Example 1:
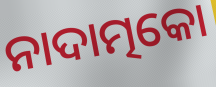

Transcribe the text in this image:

ନାଦାତ୍ମକୋ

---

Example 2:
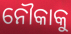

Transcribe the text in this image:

ନୌକାକୁ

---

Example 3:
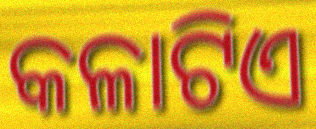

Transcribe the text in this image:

କଳାଟିଏ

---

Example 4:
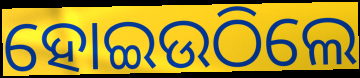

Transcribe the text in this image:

ହୋଇଉଠିଲେ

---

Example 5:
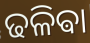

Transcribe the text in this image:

ଢଳିଵା